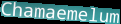
Chamaemelum